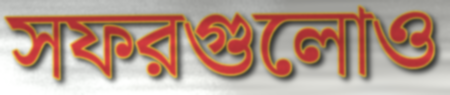
সফরগুলোও